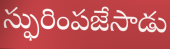
స్ఫురింపజేసాడు